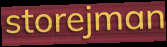
storejman